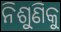
ନିଶୁଣିକୁ